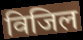
विजिल